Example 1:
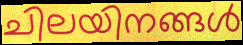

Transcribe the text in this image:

ചിലയിനങ്ങൾ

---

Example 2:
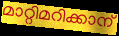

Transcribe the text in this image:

മാറ്റിമറിക്കാന്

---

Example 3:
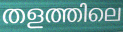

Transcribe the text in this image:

തളത്തിലെ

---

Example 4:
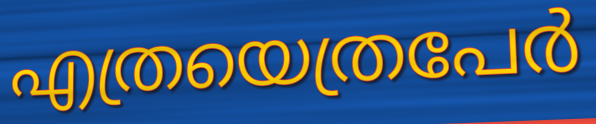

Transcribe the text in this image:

എത്രയെത്രപേർ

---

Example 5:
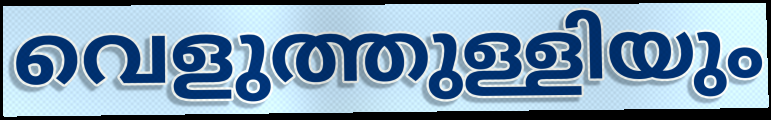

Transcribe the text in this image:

വെളുത്തുള്ളിയും